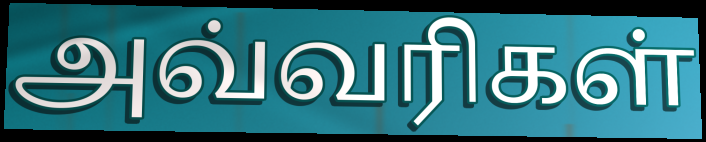
அவ்வரிகள்